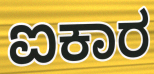
ಐಕಾರ